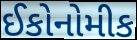
ઈકોનોમીક